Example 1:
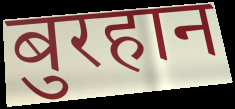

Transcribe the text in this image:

बुरहान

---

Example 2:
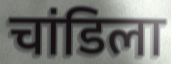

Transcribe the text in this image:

चांडिला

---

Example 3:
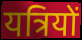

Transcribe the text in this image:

यत्रियों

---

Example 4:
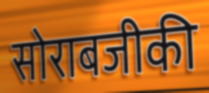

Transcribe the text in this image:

सोराबजीकी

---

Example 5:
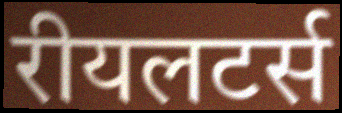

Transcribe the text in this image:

रीयलटर्स